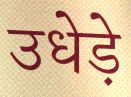
उधेड़े